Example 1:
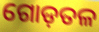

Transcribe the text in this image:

ଗୋଡ଼ତଳ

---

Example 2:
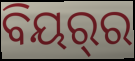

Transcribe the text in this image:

ବିୟର୍‌ର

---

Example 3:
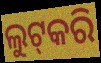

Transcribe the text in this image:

ଲୁଟ୍‌କରି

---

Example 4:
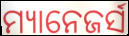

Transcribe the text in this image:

ମ୍ୟାନେଜର୍ସ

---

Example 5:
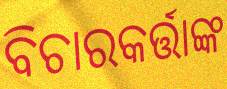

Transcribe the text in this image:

ବିଚାରକର୍ତ୍ତାଙ୍କ